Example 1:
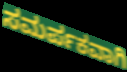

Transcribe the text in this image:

ಸಮರ್ಪಕವಾಗಿ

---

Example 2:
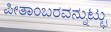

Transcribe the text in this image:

ಪೀತಾಂಬರವನ್ನುಟ್ಟು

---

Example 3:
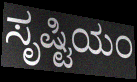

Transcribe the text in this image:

ಸೃಷ್ಟಿಯಂ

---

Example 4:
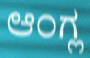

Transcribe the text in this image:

ಆಂಗ್ಲ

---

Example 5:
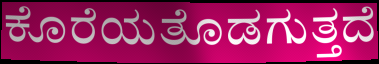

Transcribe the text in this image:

ಕೊರೆಯತೊಡಗುತ್ತದೆ